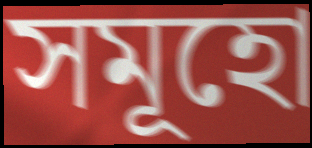
সমূহো